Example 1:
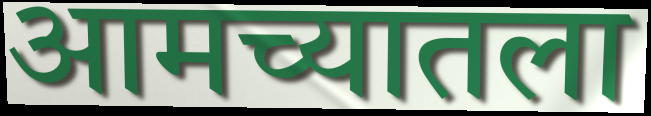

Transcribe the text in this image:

आमच्यातला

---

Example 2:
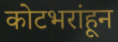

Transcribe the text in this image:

कोटभरांहून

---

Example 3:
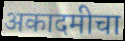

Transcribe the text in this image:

अकादमीचा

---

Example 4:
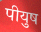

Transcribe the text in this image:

पीयुष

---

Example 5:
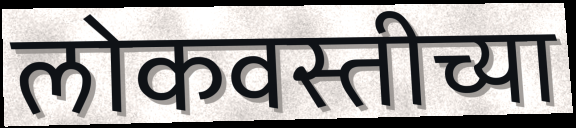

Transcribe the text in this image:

लोकवस्तीच्या